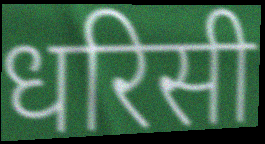
धरिसी